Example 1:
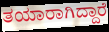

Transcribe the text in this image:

ತಯಾರಾಗಿದ್ದಾರೆ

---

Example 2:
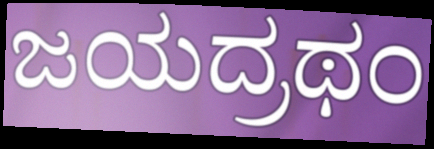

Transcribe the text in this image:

ಜಯದ್ರಥಂ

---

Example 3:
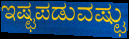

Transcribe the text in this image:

ಇಷ್ಟಪಡುವಷ್ಟು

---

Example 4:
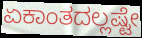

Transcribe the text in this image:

ಏಕಾಂತದಲ್ಲಷ್ಟೇ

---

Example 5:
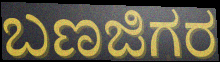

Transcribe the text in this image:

ಬಣಜಿಗರ